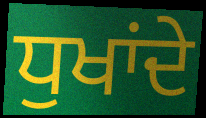
ਧੁਖਾਂਦੇ